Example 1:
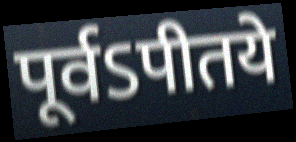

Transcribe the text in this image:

पूर्वऽपीतये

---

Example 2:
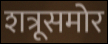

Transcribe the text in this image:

शत्रूसमोर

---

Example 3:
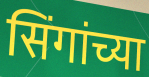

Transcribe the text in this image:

सिंगांच्या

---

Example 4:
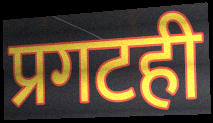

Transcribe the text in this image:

प्रगटही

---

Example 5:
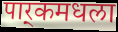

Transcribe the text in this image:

पार्कमधला